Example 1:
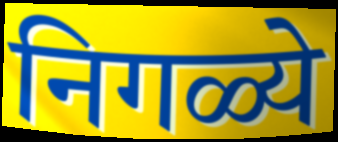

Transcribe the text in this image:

निगळ्ये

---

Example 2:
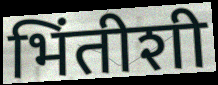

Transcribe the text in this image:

भिंतीशी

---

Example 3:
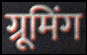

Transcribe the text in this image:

ग्रूमिंग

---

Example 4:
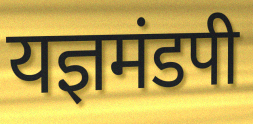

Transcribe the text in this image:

यज्ञमंडपी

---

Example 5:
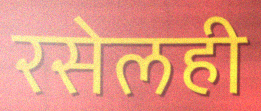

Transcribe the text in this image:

रसेलही